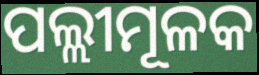
ପଲ୍ଲୀମୂଳକ